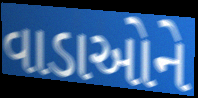
વાડાઓને